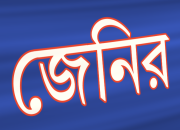
জেনির